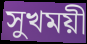
সুখময়ী